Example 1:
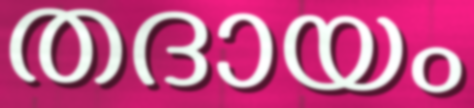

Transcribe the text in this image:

തദായം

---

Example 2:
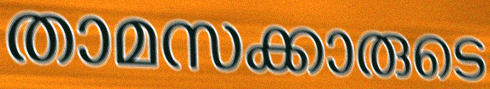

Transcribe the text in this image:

താമസക്കാരുടെ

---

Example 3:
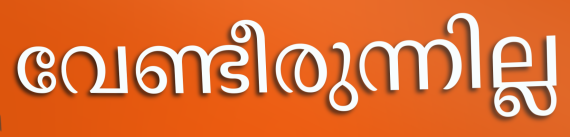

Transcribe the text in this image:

വേണ്ടീരുന്നില്ല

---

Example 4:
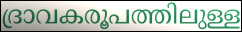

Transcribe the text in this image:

ദ്രാവകരൂപത്തിലുള്ള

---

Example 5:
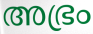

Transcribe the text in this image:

അഭ്രം